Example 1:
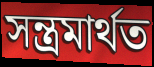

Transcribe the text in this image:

সন্ত্ৰমাৰ্থত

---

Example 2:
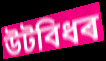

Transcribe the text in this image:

উটবিধৰ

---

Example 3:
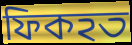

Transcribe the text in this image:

ফিকহত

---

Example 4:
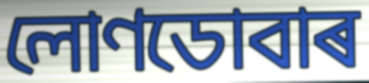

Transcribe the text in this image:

লোণডোবাৰ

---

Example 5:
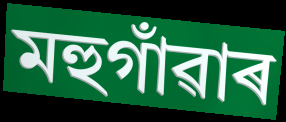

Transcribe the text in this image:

মহুগাঁৱাৰ